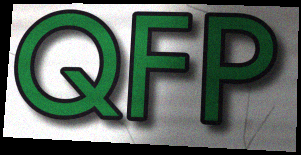
QFP